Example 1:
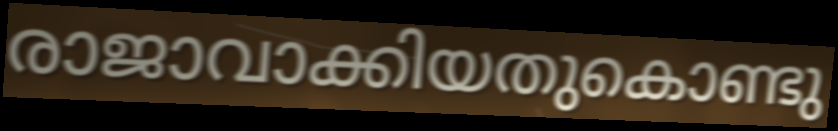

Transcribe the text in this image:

രാജാവാക്കിയതുകൊണ്ടു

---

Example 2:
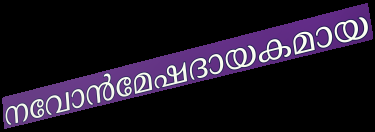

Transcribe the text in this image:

നവോൻമേഷദായകമായ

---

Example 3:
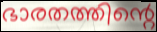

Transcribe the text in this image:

ഭാരതത്തിന്റെ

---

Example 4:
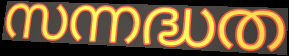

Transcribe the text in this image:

സന്നദ്ധത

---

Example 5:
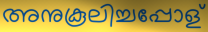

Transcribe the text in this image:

അനുകൂലിച്ചപ്പോള്